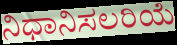
ನಿಧಾನಿಸಲರಿಯೆ